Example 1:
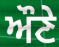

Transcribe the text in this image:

ਔਣੇ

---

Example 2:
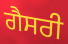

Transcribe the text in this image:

ਗੈਸਰੀ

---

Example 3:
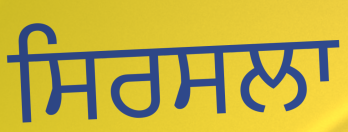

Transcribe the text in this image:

ਸਿਰਸਲਾ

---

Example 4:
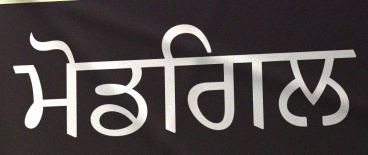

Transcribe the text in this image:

ਮੋਡਗਿਲ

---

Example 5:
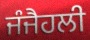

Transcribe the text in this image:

ਜੰਜੈਹਲੀ